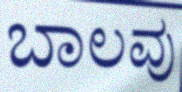
ಬಾಲವು